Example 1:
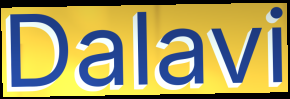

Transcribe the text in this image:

Dalavi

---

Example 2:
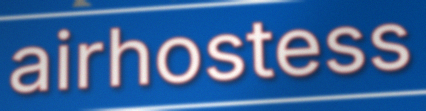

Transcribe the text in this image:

airhostess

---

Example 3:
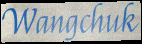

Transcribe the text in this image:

Wangchuk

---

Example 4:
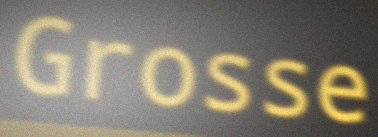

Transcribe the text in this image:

Grosse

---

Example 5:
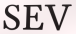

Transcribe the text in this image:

SEV